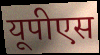
यूपीएस